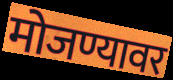
मोजण्यावर